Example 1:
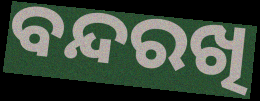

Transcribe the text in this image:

ବନ୍ଦରଖି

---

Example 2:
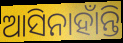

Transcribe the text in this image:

ଆସିନାହାଁନ୍ତି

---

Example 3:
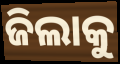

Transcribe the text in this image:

ଜିଲାକୁ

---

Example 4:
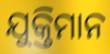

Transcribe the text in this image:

ଯୁକ୍ତିମାନ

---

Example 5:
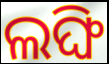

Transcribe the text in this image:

ଲଙ୍ଘି